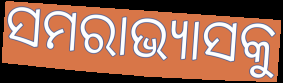
ସମରାଭ୍ୟାସକୁ